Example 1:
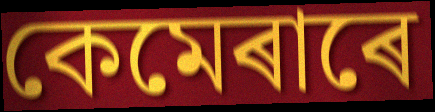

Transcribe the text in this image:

কেমেৰাৰে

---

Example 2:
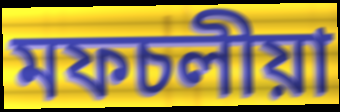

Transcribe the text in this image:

মফচলীয়া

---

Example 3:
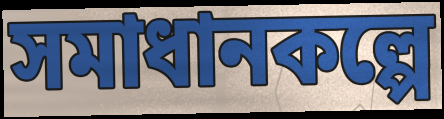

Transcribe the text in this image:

সমাধানকল্পে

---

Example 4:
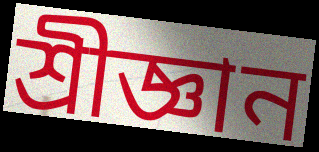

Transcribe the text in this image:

শ্ৰীজ্ঞান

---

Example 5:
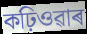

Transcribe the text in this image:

কঢ়িওৱাৰ